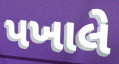
પખાલે